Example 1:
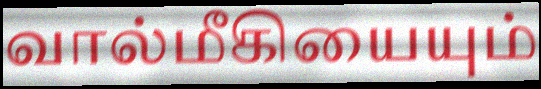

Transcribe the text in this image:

வால்மீகியையும்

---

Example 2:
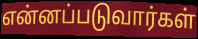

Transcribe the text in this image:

என்னப்படுவார்கள்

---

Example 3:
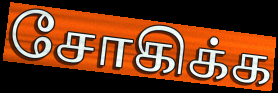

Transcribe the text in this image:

சோகிக்க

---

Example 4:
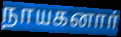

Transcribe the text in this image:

நாயகனார்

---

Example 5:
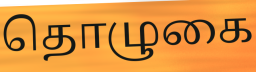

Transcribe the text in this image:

தொழுகை